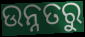
ଉନ୍ନତରୁ